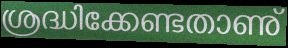
ശ്രദ്ധിക്കേണ്ടതാണു്